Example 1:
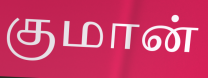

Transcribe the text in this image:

குமான்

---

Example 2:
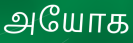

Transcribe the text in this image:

அயோக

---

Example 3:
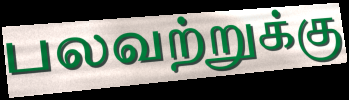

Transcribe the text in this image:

பலவற்றுக்கு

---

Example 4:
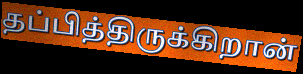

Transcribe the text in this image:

தப்பித்திருக்கிறான்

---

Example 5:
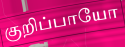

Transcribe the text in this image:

குறிப்பாயோ